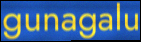
gunagalu